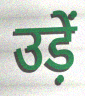
उड़ें